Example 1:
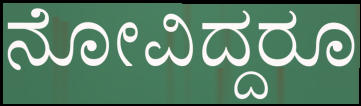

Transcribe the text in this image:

ನೋವಿದ್ದರೂ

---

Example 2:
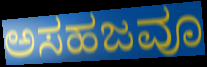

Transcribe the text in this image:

ಅಸಹಜವೂ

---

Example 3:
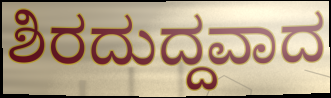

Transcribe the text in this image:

ಶಿರದುದ್ದವಾದ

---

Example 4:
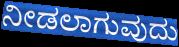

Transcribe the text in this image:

ನೀಡಲಾಗುವುದು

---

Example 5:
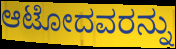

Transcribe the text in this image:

ಆಟೋದವರನ್ನು